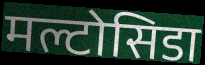
मल्टोसिडा